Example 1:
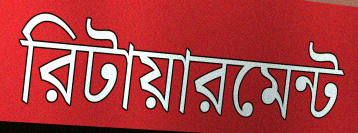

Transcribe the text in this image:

রিটায়ারমেন্ট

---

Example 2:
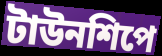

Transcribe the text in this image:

টাউনশিপে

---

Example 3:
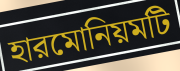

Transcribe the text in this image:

হারমোনিয়মটি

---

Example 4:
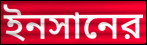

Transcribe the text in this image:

ইনসানের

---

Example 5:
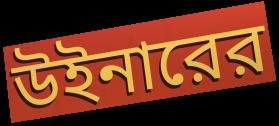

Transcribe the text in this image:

উইনারের